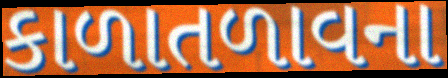
કાળાતળાવના